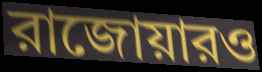
রাজোয়ারও